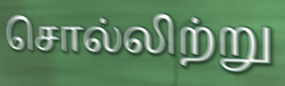
சொல்லிற்று